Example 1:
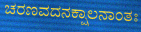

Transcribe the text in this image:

ಚರಣವದನಕ್ಷಾಲನಾಂತಃ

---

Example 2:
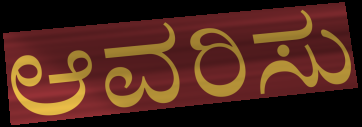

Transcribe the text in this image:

ಆವರಿಸು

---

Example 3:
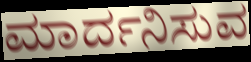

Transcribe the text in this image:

ಮಾರ್ದನಿಸುವ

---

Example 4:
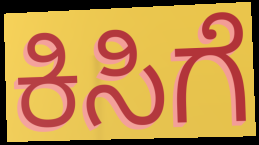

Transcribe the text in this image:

ಕಿಸಿಗೆ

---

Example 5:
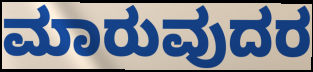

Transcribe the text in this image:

ಮಾರುವುದರ